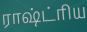
ராஷ்ட்ரிய